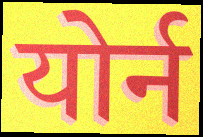
योर्न